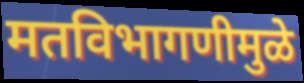
मतविभागणीमुळे